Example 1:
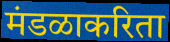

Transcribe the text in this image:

मंडळाकरिता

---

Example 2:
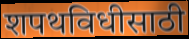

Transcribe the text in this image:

शपथविधीसाठी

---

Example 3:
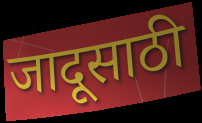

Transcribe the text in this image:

जादूसाठी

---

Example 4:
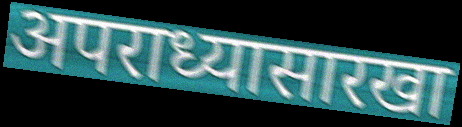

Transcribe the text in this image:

अपराध्यासारखा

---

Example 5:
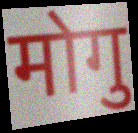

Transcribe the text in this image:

मोगु